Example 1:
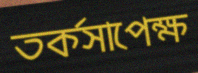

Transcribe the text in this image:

তর্কসাপেক্ষ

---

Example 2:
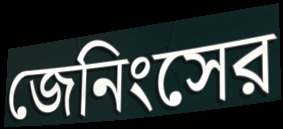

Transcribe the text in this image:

জেনিংসের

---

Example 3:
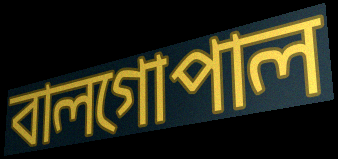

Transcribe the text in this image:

বালগোপাল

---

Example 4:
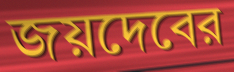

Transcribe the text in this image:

জয়দেবের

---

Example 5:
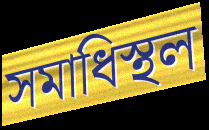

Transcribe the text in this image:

সমাধিস্থল